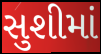
સુશીમાં